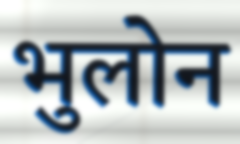
भुलोन